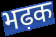
भढ़क